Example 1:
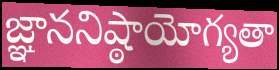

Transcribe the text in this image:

జ్ఞాననిష్ఠాయోగ్యతా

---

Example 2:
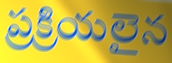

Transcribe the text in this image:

ప్రక్రియలైన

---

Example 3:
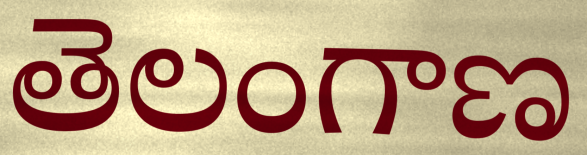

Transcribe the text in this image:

తెలంగాణ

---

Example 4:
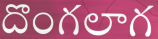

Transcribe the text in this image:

దొంగలాగ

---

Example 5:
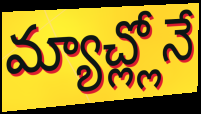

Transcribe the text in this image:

మ్యాచ్ల్లోనే